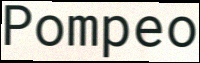
Pompeo